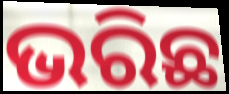
ଭରିଛ